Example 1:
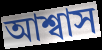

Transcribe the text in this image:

আশ্বাস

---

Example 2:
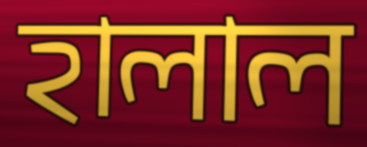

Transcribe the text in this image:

হালাল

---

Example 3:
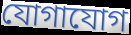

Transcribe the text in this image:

যোগাযোগ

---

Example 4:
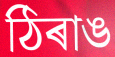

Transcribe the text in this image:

ঠিৰাঙ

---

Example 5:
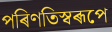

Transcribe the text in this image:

পৰিণতিস্বৰূপে